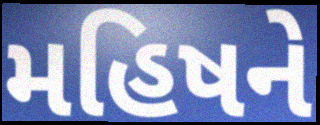
મહિષને